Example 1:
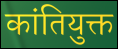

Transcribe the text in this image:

कांतियुक्त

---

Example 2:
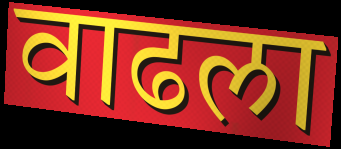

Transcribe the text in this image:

वाढला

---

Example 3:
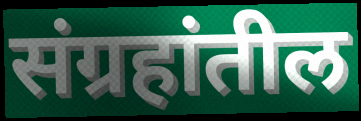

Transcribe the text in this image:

संग्रहांतील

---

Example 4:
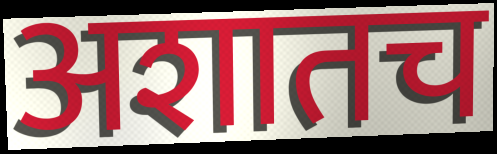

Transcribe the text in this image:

अशातच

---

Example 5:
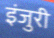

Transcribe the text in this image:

इंजुरी